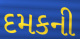
દમકની